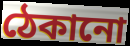
ঠেকানো